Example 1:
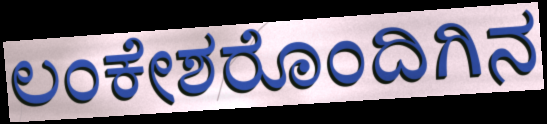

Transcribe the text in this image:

ಲಂಕೇಶರೊಂದಿಗಿನ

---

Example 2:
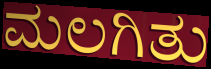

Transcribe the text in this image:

ಮಲಗಿತು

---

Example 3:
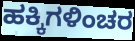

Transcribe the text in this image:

ಹಕ್ಕಿಗಳಿಂಚರ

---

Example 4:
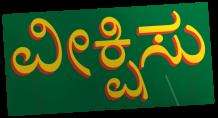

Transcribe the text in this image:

ವೀಕ್ಷಿಸು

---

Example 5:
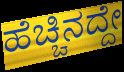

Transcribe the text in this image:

ಹೆಚ್ಚಿನದ್ದೇ